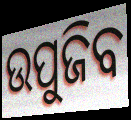
ଉପୁଜିବ